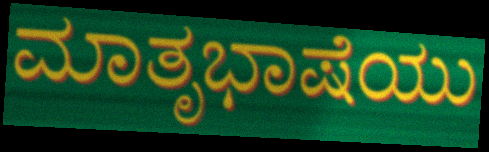
ಮಾತೃಭಾಷೆಯು